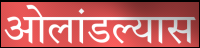
ओलांडल्यास